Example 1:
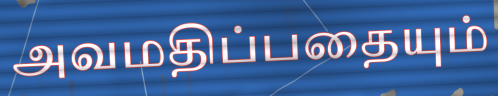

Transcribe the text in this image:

அவமதிப்பதையும்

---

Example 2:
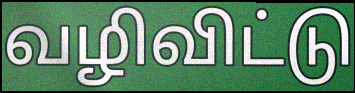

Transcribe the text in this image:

வழிவிட்டு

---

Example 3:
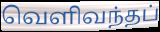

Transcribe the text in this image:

வெளிவந்தப்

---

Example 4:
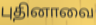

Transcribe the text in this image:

புதினாவை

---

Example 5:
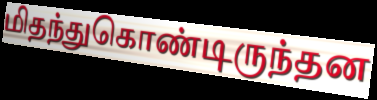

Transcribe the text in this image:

மிதந்துகொண்டிருந்தன